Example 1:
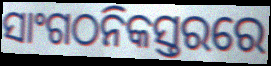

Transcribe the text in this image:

ସାଂଗଠନିକସ୍ତରରେ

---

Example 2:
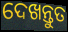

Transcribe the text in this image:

ଦେଖନ୍ତୁତ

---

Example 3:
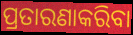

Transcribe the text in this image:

ପ୍ରତାରଣାକରିବା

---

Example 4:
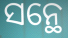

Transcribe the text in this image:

ସନ୍ଥେ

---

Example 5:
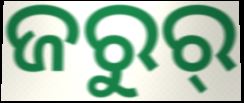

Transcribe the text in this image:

ଜରୁର୍